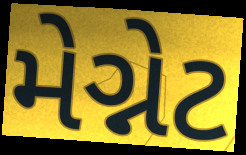
મેગ્નેટ